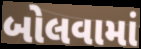
બોલવામાં